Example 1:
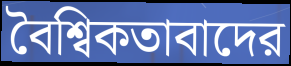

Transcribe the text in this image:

বৈশ্বিকতাবাদের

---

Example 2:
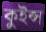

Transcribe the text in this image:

কুইন্স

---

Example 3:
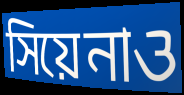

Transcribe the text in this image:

সিয়েনাও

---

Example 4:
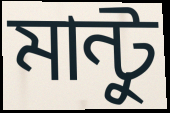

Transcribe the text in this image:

মান্টু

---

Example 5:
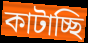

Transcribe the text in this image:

কাটাচ্ছি